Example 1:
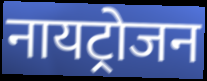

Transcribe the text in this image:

नायट्रोजन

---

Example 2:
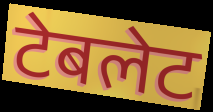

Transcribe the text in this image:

टेबलेट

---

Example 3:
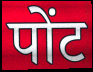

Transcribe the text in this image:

पोंट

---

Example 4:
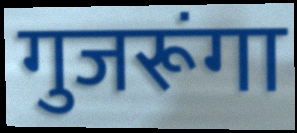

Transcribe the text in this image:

गुजरूंगा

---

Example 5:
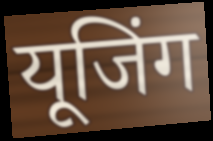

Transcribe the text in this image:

यूजिंग